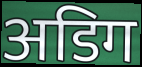
अडिग